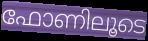
ഫോണിലൂടെ